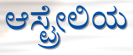
ಆಸ್ಟ್ರೇಲಿಯ